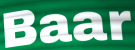
Baar